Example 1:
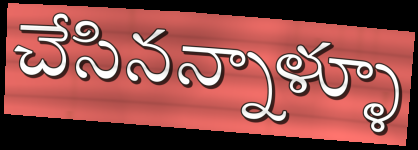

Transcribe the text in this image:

చేసినన్నాళ్ళూ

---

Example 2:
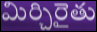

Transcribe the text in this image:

మిర్చిరైతు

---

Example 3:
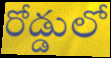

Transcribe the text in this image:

రోడ్డులో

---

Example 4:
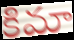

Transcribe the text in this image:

కిమా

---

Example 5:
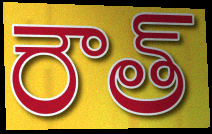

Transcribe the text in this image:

రౌత్